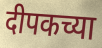
दीपकच्या